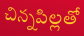
చిన్నపిల్లతో